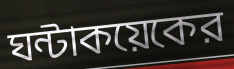
ঘন্টাকয়েকের